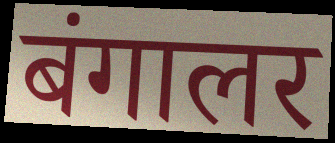
बंगालर